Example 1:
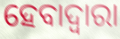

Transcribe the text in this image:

ହେବାଦ୍ୱାରା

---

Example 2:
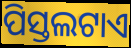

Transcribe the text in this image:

ପିସ୍ତଲଟାଏ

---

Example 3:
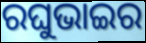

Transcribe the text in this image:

ରଘୁଭାଇର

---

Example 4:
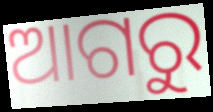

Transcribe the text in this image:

ଆଗରୁ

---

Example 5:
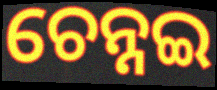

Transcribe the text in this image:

ଚେନ୍ନଇ